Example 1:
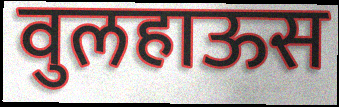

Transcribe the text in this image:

वुलहाऊस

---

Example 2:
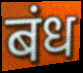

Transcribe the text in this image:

बंध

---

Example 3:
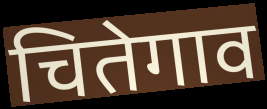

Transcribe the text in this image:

चितेगाव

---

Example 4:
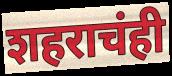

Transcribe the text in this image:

शहराचंही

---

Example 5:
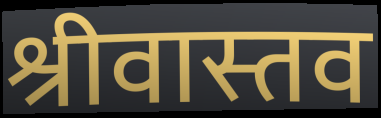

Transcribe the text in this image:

श्रीवास्तव